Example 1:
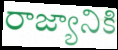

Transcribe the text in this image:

రాజ్యానికి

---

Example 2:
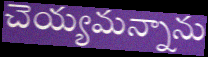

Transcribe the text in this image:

చెయ్యమన్నాను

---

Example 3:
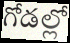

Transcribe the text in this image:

గోడల్లో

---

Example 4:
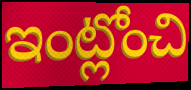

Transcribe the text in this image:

ఇంట్లోంచి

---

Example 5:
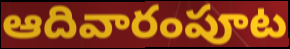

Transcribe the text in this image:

ఆదివారంపూట